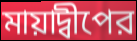
মায়াদ্বীপের